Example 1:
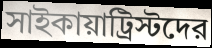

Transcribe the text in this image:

সাইকায়াট্রিস্টদের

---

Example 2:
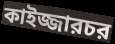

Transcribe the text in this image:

কাইজ্জারচর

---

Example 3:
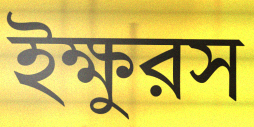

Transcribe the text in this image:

ইক্ষুরস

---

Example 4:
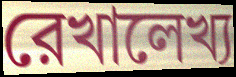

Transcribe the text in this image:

রেখালেখ্য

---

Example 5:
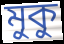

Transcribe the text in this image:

মুকু